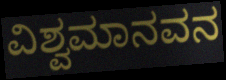
ವಿಶ್ವಮಾನವನ